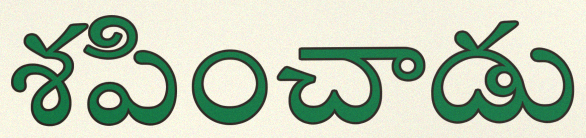
శపించాడు